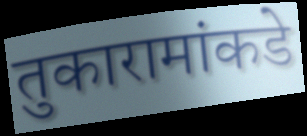
तुकारामांकडे